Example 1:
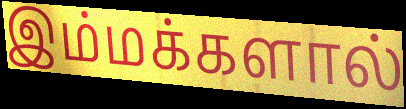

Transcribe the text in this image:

இம்மக்களால்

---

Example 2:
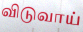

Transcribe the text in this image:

விடுவாய்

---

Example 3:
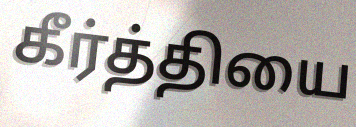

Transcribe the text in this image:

கீர்த்தியை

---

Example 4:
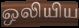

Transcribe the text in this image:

ஒலியிய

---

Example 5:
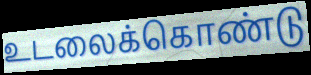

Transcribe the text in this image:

உடலைக்கொண்டு